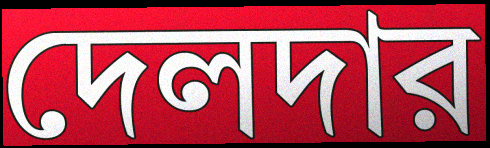
দেলদার